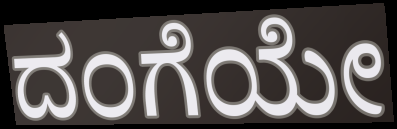
ದಂಗೆಯೇ